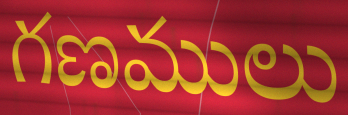
గణములు